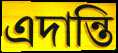
এদান্তি